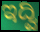
ಇದ್ವಿ